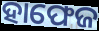
ହାଫେଜ